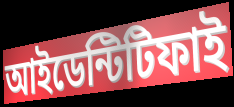
আইডেন্টিটিফাই